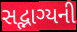
સદ્ભાગ્યની